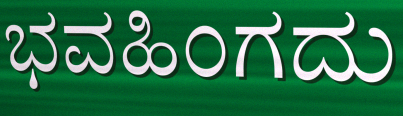
ಭವಹಿಂಗದು